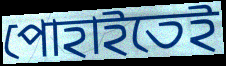
পোহাইতেই